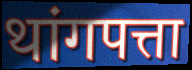
थांगपत्ता